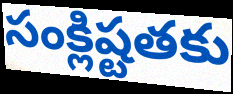
సంక్లిష్టతకు